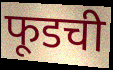
फूडची